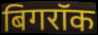
बिगरॉक